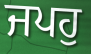
ਜਪਹੁ